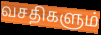
வசதிகளும்